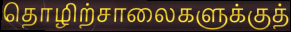
தொழிற்சாலைகளுக்குத்